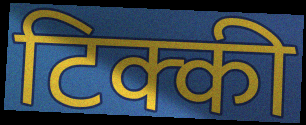
टिक्‍की